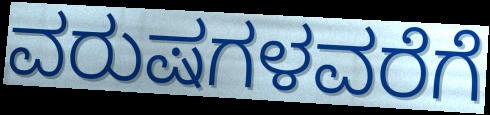
ವರುಷಗಳವರೆಗೆ